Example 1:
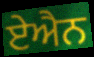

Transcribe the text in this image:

ਏਐਨ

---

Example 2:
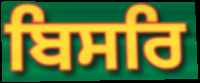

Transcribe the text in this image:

ਬਿਸਰਿ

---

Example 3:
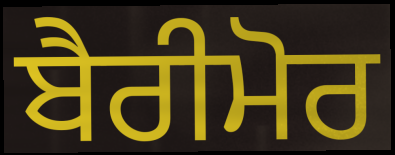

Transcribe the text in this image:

ਬੈਰੀਮੋਰ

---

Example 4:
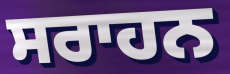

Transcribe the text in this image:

ਸਰਾਹਨ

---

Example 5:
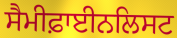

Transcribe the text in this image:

ਸੈਮੀਫ਼ਾਈਨਲਿਸਟ